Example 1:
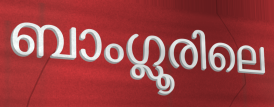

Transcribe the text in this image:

ബാംഗ്ലൂരിലെ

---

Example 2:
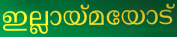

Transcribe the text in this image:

ഇല്ലായ്മയോട്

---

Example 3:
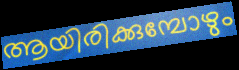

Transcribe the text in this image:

ആയിരിക്കുമ്പോഴും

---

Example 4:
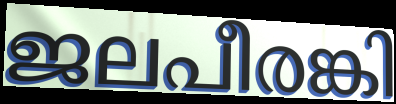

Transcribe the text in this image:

ജലപീരങ്കി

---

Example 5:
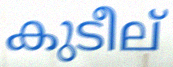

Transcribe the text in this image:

കുടീല്